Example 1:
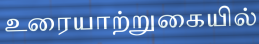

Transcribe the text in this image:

உரையாற்றுகையில்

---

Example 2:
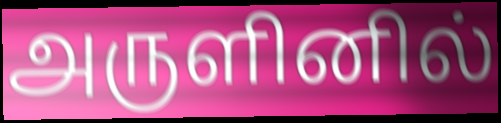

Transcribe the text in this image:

அருளினில்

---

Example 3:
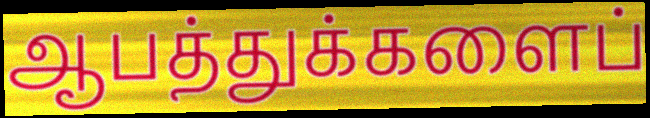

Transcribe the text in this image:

ஆபத்துக்களைப்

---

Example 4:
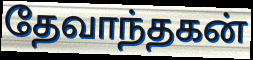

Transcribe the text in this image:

தேவாந்தகன்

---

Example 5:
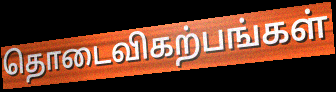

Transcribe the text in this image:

தொடைவிகற்பங்கள்